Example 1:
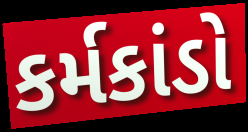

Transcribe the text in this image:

કર્મકાંડો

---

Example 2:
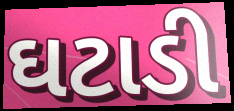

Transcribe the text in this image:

ઘટાડી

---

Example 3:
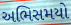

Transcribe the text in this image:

અભિસમયો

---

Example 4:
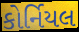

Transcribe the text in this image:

કોર્નિયલ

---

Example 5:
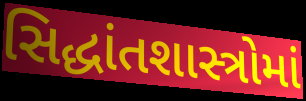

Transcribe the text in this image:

સિદ્ધાંતશાસ્ત્રોમાં